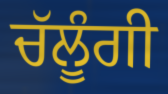
ਚੱਲੂੰਗੀ